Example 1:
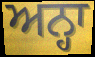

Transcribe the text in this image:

ਅਨ੍ਹਾ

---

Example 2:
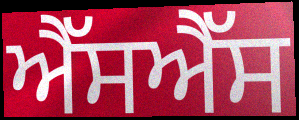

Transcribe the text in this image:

ਐੱਸਐੱਸ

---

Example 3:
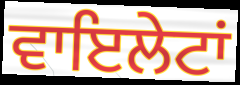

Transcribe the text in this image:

ਵਾਇਲੇਟਾਂ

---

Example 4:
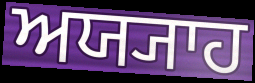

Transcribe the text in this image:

ਅਯ੍ਯਾਹ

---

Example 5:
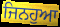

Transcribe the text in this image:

ਜਿਨਹੁਆ